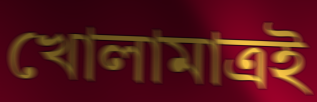
খোলামাত্রই